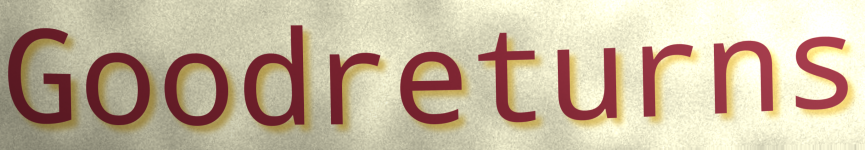
Goodreturns